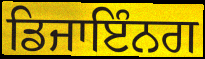
ਡਿਜਾਇੰਨਗ